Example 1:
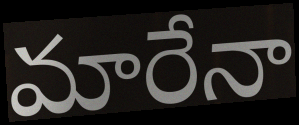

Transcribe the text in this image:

మారేనా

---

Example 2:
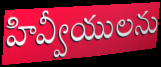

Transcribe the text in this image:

హివ్వీయులను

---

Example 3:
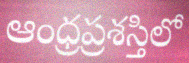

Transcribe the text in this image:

ఆంధ్రప్రశస్తిలో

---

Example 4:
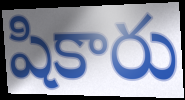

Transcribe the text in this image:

షికారు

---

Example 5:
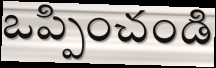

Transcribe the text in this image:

ఒప్పించండి